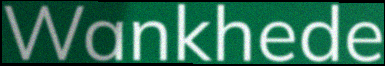
Wankhede